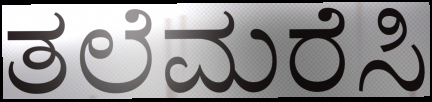
ತಲೆಮರೆಸಿ